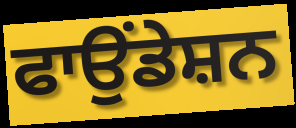
ਫਾਉਂਡੇਸ਼ਨ